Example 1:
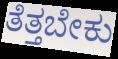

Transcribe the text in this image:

ತೆತ್ತಬೇಕು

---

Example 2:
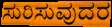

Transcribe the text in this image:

ಸುರಿಸುವುದರ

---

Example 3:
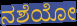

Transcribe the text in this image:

ನಶೆಯೋ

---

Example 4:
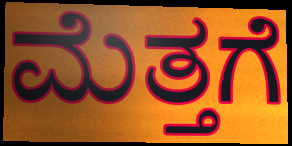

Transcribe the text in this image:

ಮೆತ್ತಗೆ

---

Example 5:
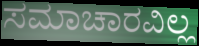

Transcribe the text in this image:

ಸಮಾಚಾರವಿಲ್ಲ